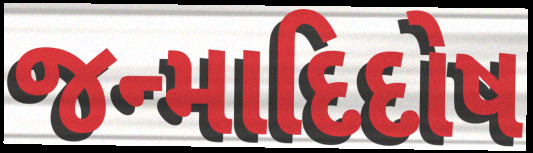
જન્માદિદોષ